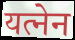
यत्‍नेन